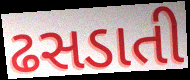
ઢસડાતી